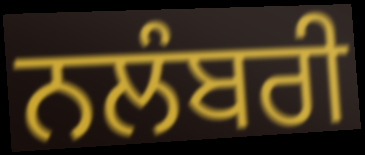
ਨਲੰਬਰੀ